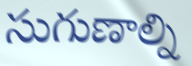
సుగుణాల్ని